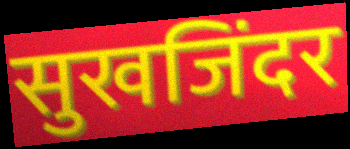
सुखजिंदर